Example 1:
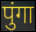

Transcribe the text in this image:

पुंगा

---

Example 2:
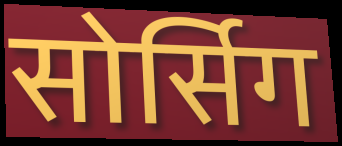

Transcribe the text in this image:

सोर्सिग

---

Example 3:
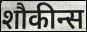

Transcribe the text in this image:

शौकीन्स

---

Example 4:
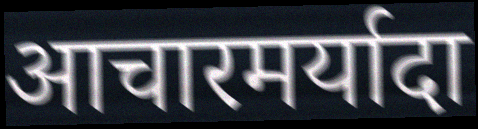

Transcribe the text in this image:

आचारमर्यादा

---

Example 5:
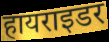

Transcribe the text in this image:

हायराइडर